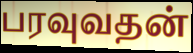
பரவுவதன்